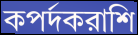
কপর্দকরাশি